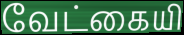
வேட்கையி